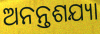
ଅନନ୍ତଶଯ୍ୟା